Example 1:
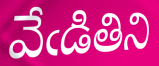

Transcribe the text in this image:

వేఁడితిని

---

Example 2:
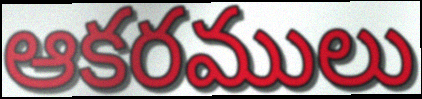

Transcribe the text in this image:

ఆకరములు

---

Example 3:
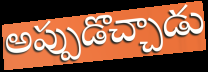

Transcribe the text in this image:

అప్పుడొచ్చాడు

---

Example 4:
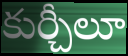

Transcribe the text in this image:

కుర్చీలూ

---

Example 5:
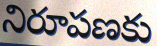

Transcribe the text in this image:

నిరూపణకు